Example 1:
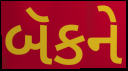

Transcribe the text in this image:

બૅકને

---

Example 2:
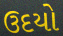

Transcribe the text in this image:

ઉદયો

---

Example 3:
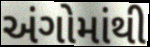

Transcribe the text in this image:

અંગોમાંથી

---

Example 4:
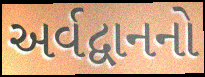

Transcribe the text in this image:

અર્વદ્વાનનો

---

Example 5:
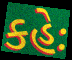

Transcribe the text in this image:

કહેઃ